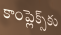
కాంప్లెక్స్‌కు